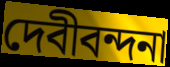
দেবীবন্দনা